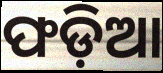
ଫଡ଼ିଆ